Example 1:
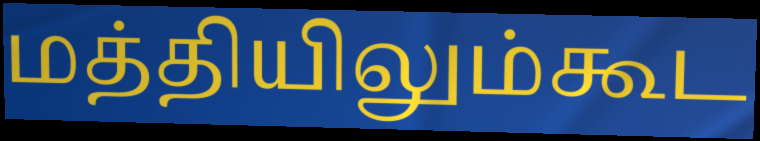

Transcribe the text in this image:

மத்தியிலும்கூட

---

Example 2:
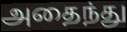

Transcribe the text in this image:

அதைந்து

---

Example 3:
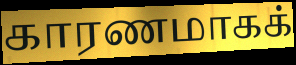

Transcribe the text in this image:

காரணமாகக்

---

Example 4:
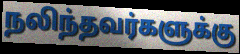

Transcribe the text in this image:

நலிந்தவர்களுக்கு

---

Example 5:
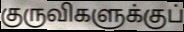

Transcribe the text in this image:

குருவிகளுக்குப்